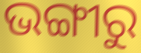
ଭଙ୍ଗୀରୁ